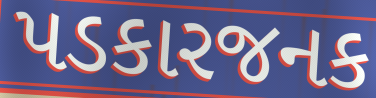
પડકારજનક